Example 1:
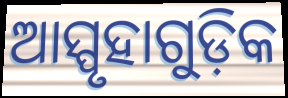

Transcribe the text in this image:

ଆସ୍ପୃହାଗୁଡ଼ିକ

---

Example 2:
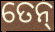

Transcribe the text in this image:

ତେନ୍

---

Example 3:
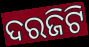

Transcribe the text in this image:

ଦରଜିଟି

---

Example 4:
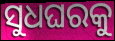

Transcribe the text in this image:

ସୁଧଘରକୁ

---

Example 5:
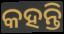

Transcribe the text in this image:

କହନ୍ତି